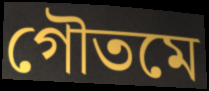
গৌতমে